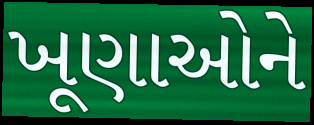
ખૂણાઓને